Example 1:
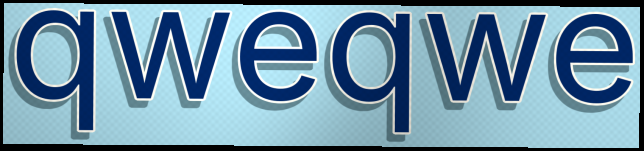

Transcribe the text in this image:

qweqwe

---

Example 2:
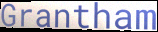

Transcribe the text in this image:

Grantham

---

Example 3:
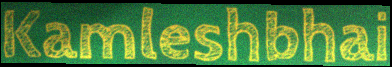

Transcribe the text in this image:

Kamleshbhai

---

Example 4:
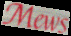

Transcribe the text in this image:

Mews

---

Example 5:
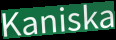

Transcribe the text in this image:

Kaniska